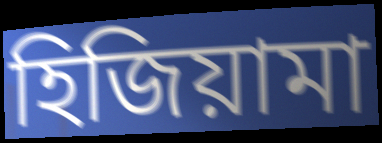
হিজিয়ামা